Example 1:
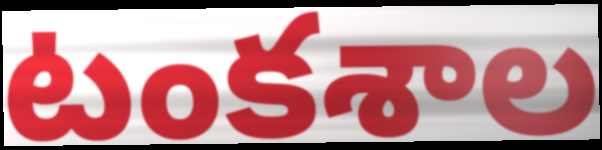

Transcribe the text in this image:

టంకశాల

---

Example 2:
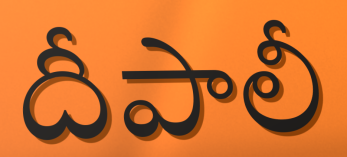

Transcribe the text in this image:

దీపాలీ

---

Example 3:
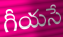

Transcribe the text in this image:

గీయసే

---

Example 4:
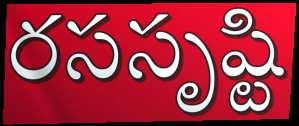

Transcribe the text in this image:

రససృష్టి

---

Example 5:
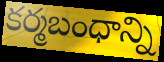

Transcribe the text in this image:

కర్మబంధాన్ని